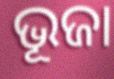
ଭୂଜା